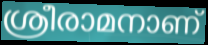
ശ്രീരാമനാണ്